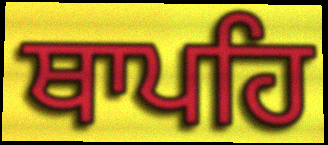
ਥਾਪਹਿ